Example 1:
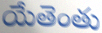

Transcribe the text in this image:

యేతెంతు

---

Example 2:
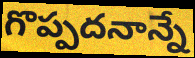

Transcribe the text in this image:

గొప్పదనాన్నే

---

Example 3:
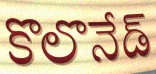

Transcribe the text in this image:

కొలొనేడ్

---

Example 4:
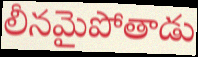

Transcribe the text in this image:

లీనమైపోతాడు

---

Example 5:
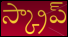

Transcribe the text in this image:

స్క్రాప్